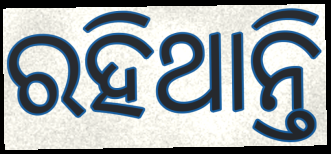
ରହିଥାନ୍ତି